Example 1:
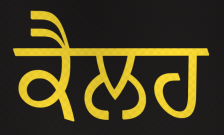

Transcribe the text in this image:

ਕੈਲਹ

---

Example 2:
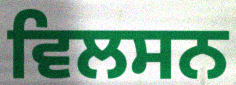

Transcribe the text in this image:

ਵਿਲਸਨ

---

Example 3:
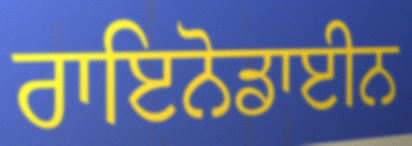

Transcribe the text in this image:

ਰਾਇਨੋਡਾਈਨ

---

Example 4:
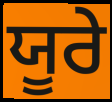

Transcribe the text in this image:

ਯੂਰੇ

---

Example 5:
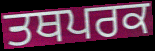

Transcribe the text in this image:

ਤਥਪਰਕ